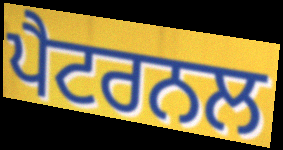
ਪੈਟਰਨਲ